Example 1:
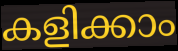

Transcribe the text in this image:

കളിക്കാം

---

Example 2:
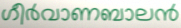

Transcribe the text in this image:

ഗീർവാണബാലൻ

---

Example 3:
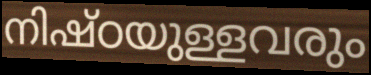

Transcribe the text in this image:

നിഷ്ഠയുള്ളവരും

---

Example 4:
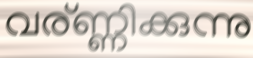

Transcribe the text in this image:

വര്ണ്ണിക്കുന്നു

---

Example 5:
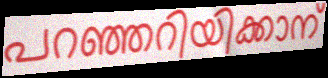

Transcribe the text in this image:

പറഞ്ഞറിയിക്കാന്